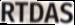
RTDAS